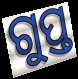
ଗୁପ୍ତ